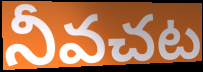
నీవచట